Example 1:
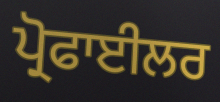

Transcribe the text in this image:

ਪ੍ਰੋਫਾਈਲਰ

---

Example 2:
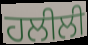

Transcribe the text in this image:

ਹਲੀਲੀ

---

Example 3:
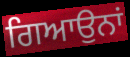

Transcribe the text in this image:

ਗਿਆਉਨਾਂ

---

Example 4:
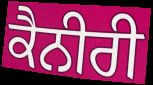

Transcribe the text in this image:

ਕੈਨੀਰੀ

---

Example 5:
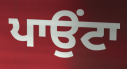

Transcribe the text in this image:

ਪਾਉੰਟਾ